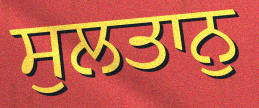
ਸੁਲਤਾਨੁ